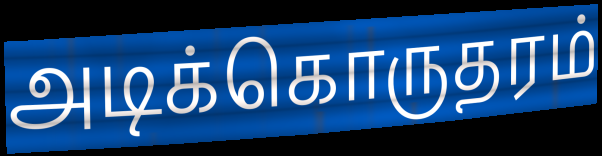
அடிக்கொருதரம்